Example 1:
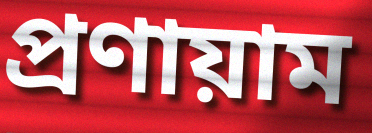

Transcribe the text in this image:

প্রণায়াম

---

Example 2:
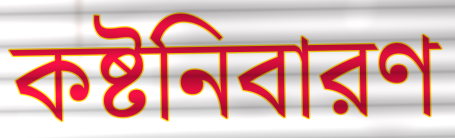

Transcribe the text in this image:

কষ্টনিবারণ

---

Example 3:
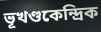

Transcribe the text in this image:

ভূখণ্ডকেন্দ্রিক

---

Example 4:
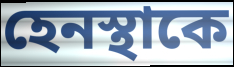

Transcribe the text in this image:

হেনস্থাকে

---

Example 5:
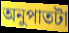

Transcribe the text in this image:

অনুপাতটা